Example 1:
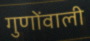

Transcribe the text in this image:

गुणोंवाली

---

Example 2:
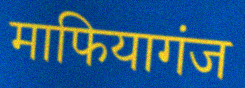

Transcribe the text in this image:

माफियागंज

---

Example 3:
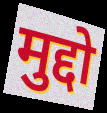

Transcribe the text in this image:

मुद्दो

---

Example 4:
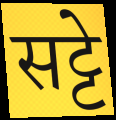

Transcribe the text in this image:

सट्टे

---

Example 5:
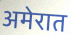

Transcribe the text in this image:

अमेरात